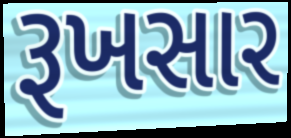
રૂખસાર